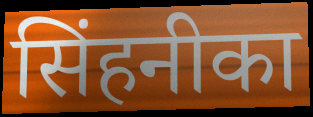
सिंहनीका